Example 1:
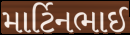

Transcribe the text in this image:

માર્ટિનભાઈ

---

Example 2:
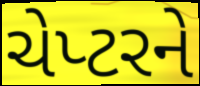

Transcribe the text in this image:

ચેપ્ટરને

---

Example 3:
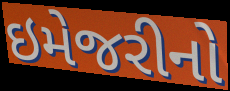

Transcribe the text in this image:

ઇમેજરીનો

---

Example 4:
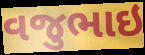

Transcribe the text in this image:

વજુભાઇ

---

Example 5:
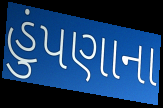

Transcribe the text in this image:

હુંપણાના